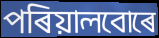
পৰিয়ালবোৰে